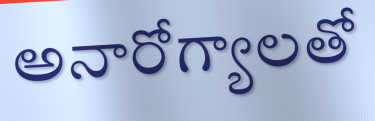
అనారోగ్యాలతో